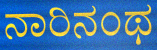
ನಾರಿನಂಥ